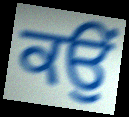
ਕਉਂ